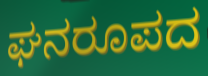
ಘನರೂಪದ